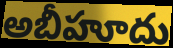
అబీహూదు